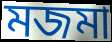
মজমা